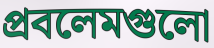
প্রবলেমগুলো